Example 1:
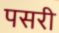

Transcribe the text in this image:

पसरी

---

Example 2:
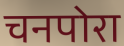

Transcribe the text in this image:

चनपोरा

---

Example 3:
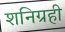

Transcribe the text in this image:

शनिग्रही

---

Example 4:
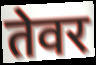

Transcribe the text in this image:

तेवर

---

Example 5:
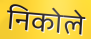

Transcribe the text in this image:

निकोले